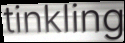
tinkling